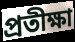
প্ৰতীক্ষা